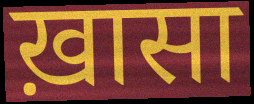
ख़ासा